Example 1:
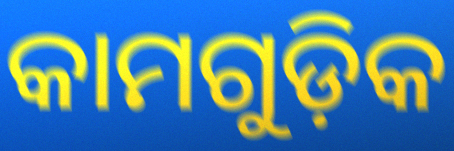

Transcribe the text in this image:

କାମଗୁଡ଼ିକ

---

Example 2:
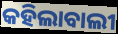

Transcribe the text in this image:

କହିଲାବାଲୀ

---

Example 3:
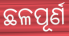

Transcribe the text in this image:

ଛଳପୂର୍ଣ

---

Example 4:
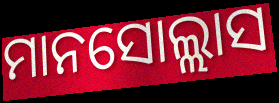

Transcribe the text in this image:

ମାନସୋଲ୍ଲାସ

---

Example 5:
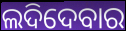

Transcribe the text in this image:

ଲଦିଦେବାର